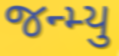
જન્મ્યુ